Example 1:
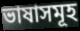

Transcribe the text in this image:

ভাষাসমূহ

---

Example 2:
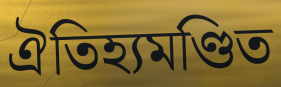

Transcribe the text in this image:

ঐতিহ্যমণ্ডিত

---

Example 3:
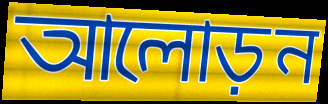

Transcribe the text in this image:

আলোড়ন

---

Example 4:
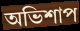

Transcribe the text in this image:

অভিশাপ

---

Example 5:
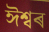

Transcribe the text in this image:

ঈশ্বৰ